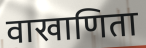
वाखाणिता